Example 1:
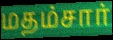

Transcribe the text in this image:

மதம்சார்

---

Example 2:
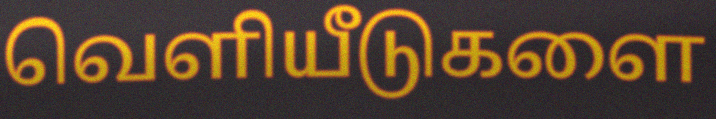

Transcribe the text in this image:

வெளியீடுகளை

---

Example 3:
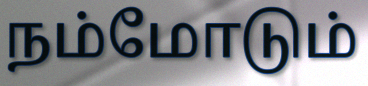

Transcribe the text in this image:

நம்மோடும்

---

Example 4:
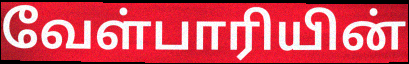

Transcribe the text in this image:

வேள்பாரியின்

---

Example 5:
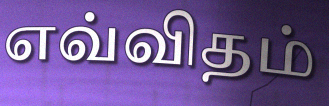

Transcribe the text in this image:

எவ்விதம்